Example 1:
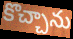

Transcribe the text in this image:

కొచ్చాను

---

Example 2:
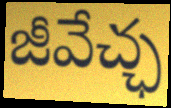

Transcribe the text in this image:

జీవేచ్ఛ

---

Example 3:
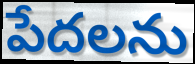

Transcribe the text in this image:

పేదలను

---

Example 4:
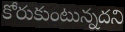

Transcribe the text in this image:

కోరుకుంటున్నదని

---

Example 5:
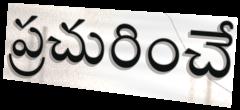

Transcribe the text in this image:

ప్రచురించే